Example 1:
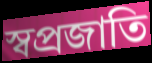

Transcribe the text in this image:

স্বপ্রজাতি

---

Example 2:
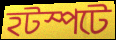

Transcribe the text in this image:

হটস্পটে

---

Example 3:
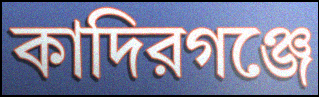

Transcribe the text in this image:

কাদিরগঞ্জে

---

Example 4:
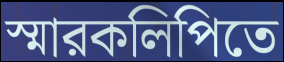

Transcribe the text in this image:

স্মারকলিপিতে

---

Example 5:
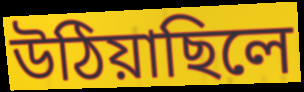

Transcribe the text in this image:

উঠিয়াছিলে